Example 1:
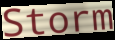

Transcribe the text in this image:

Storm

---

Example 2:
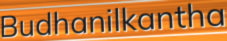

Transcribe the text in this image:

Budhanilkantha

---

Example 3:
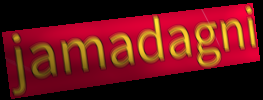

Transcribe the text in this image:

jamadagni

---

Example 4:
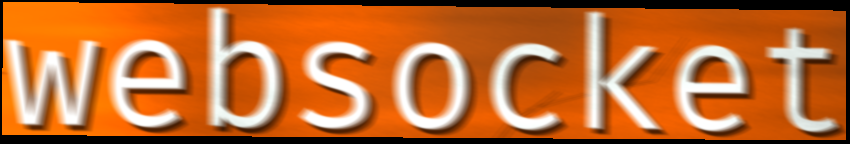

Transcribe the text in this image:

websocket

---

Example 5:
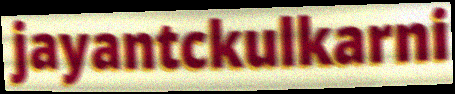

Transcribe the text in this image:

jayantckulkarni